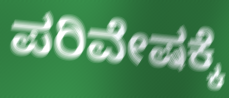
ಪರಿವೇಷಕ್ಕೆ